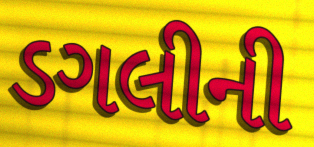
ડગલીની